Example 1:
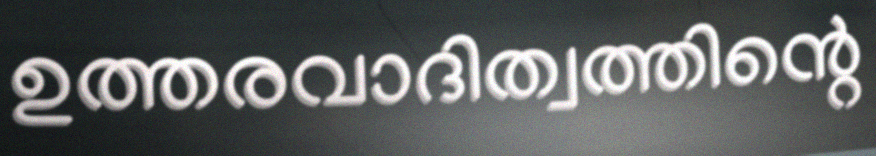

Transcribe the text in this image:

ഉത്തരവാദിത്വത്തിന്റെ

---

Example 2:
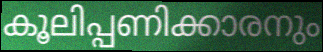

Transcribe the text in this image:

കൂലിപ്പണിക്കാരനും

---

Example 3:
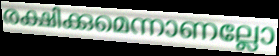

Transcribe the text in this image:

രക്ഷിക്കുമെന്നാണല്ലോ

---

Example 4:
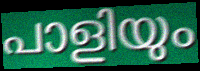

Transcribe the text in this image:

പാളിയും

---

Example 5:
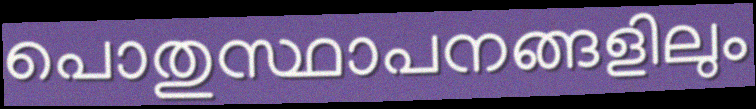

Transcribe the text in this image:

പൊതുസ്ഥാപനങ്ങളിലും